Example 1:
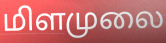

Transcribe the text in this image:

மிளமுலை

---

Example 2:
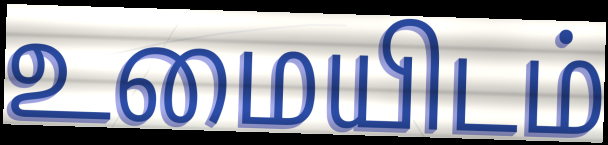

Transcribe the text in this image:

உமையிடம்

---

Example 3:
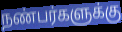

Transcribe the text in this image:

நண்பர்களுக்கு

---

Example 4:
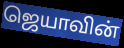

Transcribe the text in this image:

ஜெயாவின்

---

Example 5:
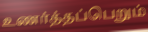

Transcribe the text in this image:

உணர்த்தப்பெறும்